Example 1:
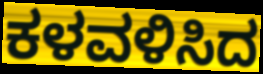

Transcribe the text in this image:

ಕಳವಳಿಸಿದ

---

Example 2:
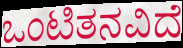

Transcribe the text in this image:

ಒಂಟಿತನವಿದೆ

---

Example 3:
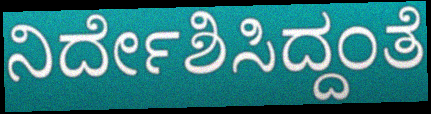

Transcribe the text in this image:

ನಿರ್ದೇಶಿಸಿದ್ದಂತೆ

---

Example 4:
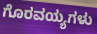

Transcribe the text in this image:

ಗೊರವಯ್ಯಗಳು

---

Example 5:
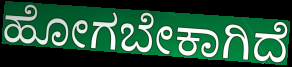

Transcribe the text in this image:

ಹೋಗಬೇಕಾಗಿದೆ